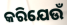
କରିଯେଉଁ